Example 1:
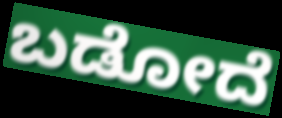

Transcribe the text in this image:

ಬಡೋದೆ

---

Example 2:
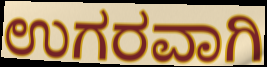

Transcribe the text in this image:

ಉಗರವಾಗಿ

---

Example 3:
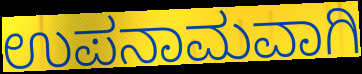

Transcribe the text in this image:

ಉಪನಾಮವಾಗಿ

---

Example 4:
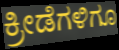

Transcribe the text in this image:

ಕ್ರೀಡೆಗಳಿಗೂ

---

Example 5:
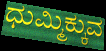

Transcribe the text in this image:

ಧುಮ್ಮಿಕ್ಕುವ